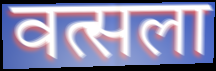
वत्‍सला